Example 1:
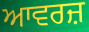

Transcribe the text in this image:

ਆਵਰਜ਼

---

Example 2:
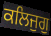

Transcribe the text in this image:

ਕਲਿਜੁਗੁ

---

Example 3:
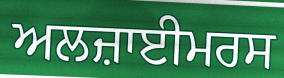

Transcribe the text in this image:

ਅਲਜ਼ਾਈਮਰਸ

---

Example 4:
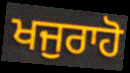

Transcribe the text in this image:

ਖਜੁਰਾਹੋ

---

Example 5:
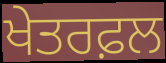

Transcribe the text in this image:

ਖੇਤਰਫ਼ਲ